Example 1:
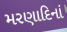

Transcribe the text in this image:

મરણાદિનાં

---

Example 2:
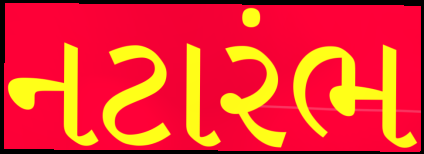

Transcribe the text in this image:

નટારંભ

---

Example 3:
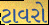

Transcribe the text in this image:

ટાવરો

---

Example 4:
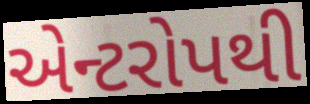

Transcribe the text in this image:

એન્ટરોપથી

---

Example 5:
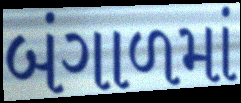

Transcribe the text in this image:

બંગાળમાં